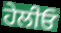
ਹੇਲੀਓ